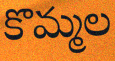
కొమ్మల